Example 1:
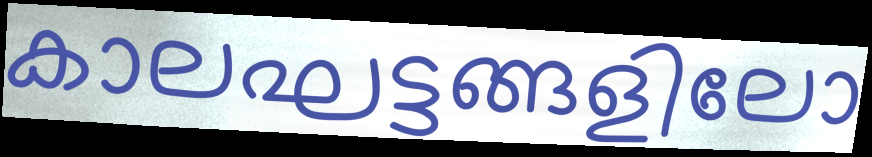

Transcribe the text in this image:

കാലഘട്ടങ്ങളിലോ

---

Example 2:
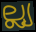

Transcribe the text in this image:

ല്ല്യ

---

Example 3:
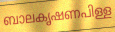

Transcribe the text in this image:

ബാലകൃഷണപിള്ള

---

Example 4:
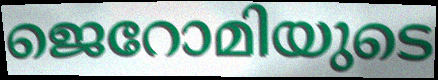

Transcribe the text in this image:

ജെറോമിയുടെ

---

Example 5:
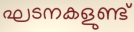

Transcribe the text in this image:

ഘടനകളുണ്ട്